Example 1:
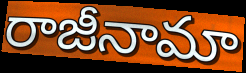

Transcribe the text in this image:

రాజీనామా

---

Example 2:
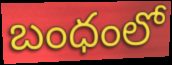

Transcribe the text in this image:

బంధంలో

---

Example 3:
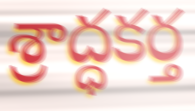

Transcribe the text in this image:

శ్రాద్ధకర్త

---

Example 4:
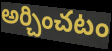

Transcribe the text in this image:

అర్చించటం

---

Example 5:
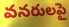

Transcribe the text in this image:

వనరులపై